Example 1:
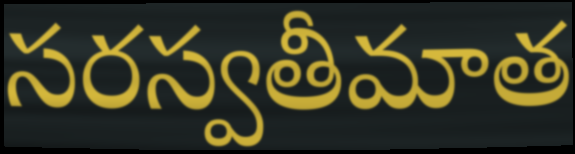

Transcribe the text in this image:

సరస్వతీమాత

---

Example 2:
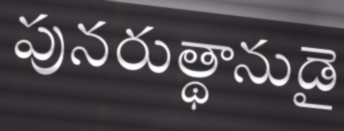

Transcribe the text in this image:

పునరుత్థానుడై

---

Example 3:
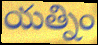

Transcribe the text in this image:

యత్నిం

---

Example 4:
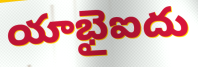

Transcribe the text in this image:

యాభైఐదు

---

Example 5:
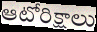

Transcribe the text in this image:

ఆటోరిక్షాలు